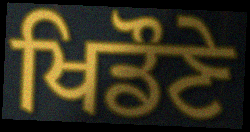
ਖਿਡੌਣੇ